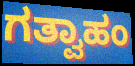
ಗತ್ವಾಹಂ